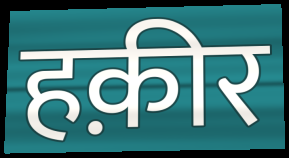
हक़ीर